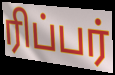
ரிப்பர்